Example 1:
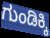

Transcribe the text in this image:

ಗುಂಡಿಕ್ಕಿ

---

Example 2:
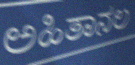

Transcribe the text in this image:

ಅಹಿತಾನಲ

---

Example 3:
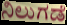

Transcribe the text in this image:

ನಿಲುಗಡೆ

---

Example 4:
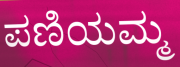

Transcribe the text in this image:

ಪಣಿಯಮ್ಮ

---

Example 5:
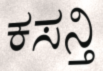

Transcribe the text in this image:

ಕಸನ್ತಿ